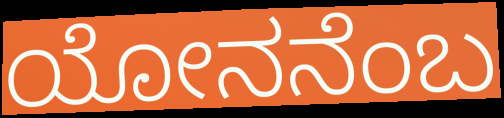
ಯೋನನೆಂಬ